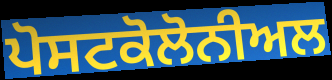
ਪੋਸਟਕੋਲੋਨੀਅਲ